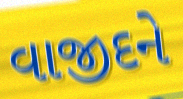
વાજીદને